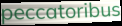
peccatoribus